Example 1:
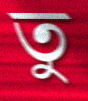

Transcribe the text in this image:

তু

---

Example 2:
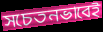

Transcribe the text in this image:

সচেতনভাবেই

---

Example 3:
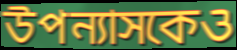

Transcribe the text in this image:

উপন্যাসকেও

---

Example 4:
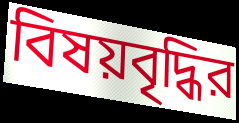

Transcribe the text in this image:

বিষয়বৃদ্ধির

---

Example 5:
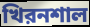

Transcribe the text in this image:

খিরনশাল